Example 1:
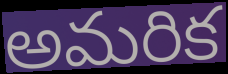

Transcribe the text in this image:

అమరిక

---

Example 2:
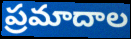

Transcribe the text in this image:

ప్రమాదాల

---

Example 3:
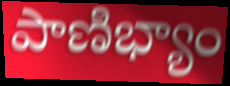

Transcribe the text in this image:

పాణిభ్యాం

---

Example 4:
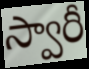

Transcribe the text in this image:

స్వారీ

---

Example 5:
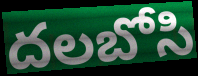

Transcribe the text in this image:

దలబోసి